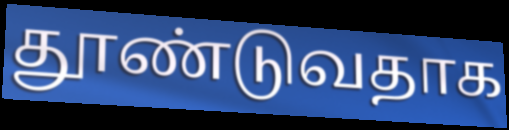
தூண்டுவதாக